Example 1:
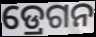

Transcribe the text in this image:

ଡ୍ରେଗନ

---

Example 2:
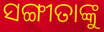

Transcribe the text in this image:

ସଙ୍ଗୀତାଙ୍କୁ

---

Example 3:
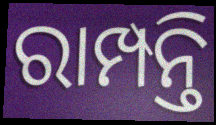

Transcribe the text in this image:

ରାମ୍ପନ୍ତି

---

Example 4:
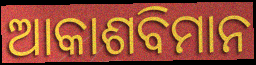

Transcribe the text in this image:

ଆକାଶବିମାନ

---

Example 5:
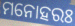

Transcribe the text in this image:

ମନୋହରଃ